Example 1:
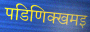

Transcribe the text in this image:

पडिणिक्खमइ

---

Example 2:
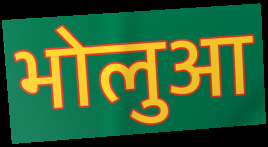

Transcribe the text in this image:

भोलुआ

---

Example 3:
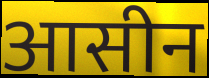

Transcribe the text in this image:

आसीन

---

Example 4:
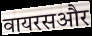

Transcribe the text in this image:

वायरसऔर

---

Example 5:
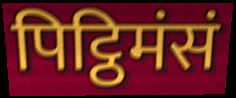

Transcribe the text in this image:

पिट्ठिमंसं